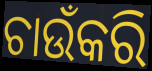
ଚାଉଁକରି